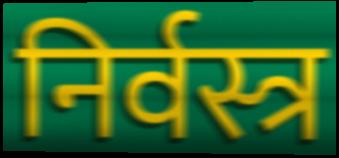
निर्वस्त्र